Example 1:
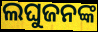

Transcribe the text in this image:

ଲଘୁଜନଙ୍କ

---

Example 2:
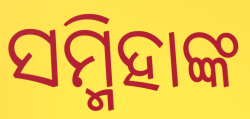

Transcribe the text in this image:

ସମ୍ମିହାଙ୍କ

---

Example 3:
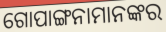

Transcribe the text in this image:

ଗୋପାଙ୍ଗନାମାନଙ୍କର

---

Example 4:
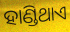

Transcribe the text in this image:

ହାଣ୍ଡିଥାଏ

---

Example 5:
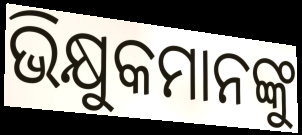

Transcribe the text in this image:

ଭିକ୍ଷୁକମାନଙ୍କୁ